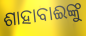
ଶାହାବାଈଙ୍କୁ